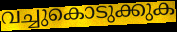
വച്ചുകൊടുക്കുക